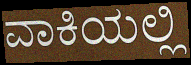
ವಾಕಿಯಲ್ಲಿ